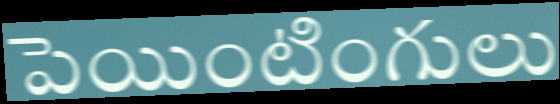
పెయింటింగులు